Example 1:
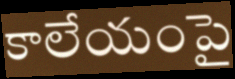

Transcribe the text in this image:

కాలేయంపై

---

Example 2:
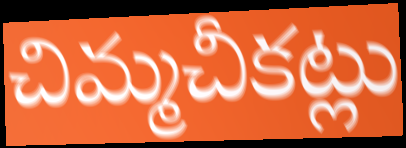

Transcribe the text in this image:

చిమ్మచీకట్లు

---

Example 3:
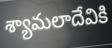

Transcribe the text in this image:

శ్యామలాదేవికి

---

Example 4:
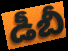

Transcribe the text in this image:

డీబీ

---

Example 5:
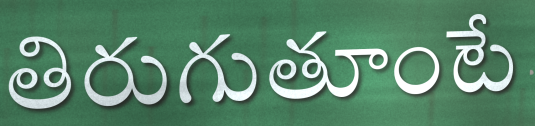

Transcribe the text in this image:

తిరుగుతూంటే